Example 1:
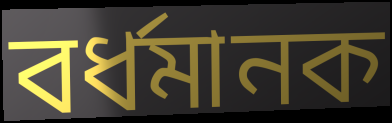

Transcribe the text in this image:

বর্ধমানক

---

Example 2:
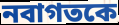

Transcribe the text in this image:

নবাগতকে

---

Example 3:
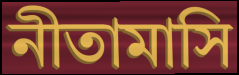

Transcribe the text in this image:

নীতামাসি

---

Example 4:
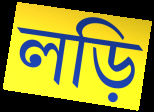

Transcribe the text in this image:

লড়ি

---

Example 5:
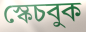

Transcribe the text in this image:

স্কেচবুক